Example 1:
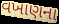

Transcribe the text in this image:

વખાણના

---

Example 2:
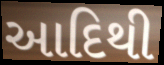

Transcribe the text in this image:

આદિથી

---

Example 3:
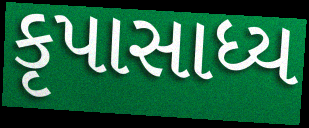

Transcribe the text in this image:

કૃપાસાધ્ય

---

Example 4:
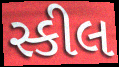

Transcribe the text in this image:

સ્કીલ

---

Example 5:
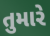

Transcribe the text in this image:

તુમારે